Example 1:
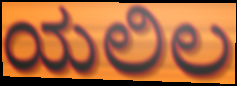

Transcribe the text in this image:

ಯಲಿಲ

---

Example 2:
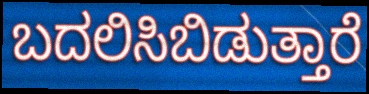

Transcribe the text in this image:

ಬದಲಿಸಿಬಿಡುತ್ತಾರೆ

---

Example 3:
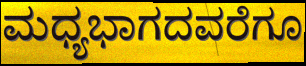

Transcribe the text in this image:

ಮಧ್ಯಭಾಗದವರೆಗೂ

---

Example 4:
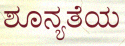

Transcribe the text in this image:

ಶೂನ್ಯತೆಯ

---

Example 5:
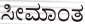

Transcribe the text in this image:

ಸೀಮಾಂತ